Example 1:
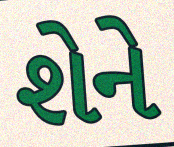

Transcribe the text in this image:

શેને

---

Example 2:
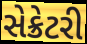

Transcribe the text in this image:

સેક્રેટરી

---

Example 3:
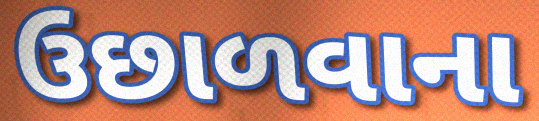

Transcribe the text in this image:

ઉછાળવાના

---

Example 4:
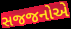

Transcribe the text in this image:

સજજનોએ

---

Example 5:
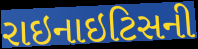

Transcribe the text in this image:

રાઇનાઇટિસની